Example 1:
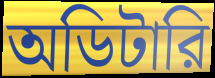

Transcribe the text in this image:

অডিটারি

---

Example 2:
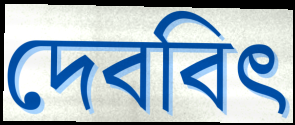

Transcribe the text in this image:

দেববিৎ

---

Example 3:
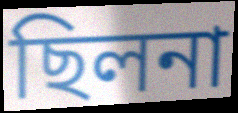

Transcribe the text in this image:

ছিলনা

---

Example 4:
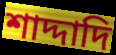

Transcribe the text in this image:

শাদ্দাদি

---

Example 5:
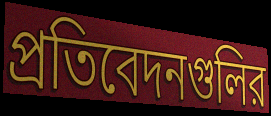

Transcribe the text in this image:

প্রতিবেদনগুলির